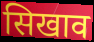
सिखाव